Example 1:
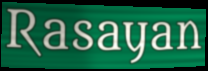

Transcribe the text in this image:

Rasayan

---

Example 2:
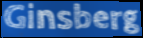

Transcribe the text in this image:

Ginsberg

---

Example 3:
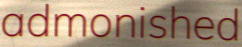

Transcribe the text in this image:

admonished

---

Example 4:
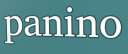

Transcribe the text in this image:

panino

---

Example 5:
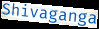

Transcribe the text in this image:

Shivaganga